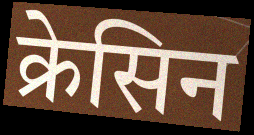
क्रेसिन